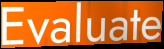
Evaluate